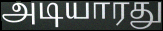
அடியாரது